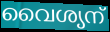
വൈശ്യന്